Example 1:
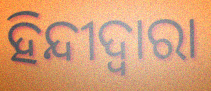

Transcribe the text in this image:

ହିନ୍ଦୀଦ୍ଵାରା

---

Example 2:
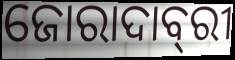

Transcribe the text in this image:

ଜୋରାଦାବ୍‌ରୀ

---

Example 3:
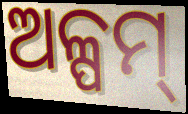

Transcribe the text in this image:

ଅଳ୍ପମ୍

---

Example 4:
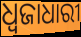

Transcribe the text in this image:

ଧ୍ଵଜାଧାରୀ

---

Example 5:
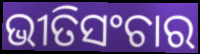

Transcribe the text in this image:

ଭୀତିସଂଚାର